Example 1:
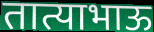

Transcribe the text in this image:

तात्याभाऊ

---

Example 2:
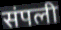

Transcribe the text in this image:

संपली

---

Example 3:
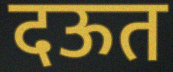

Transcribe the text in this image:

दऊत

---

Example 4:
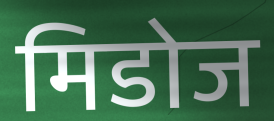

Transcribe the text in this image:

मिडोज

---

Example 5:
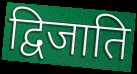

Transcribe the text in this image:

द्विजाति